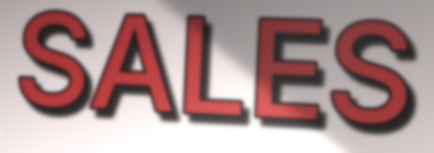
SALES